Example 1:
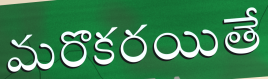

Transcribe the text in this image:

మరొకరయితే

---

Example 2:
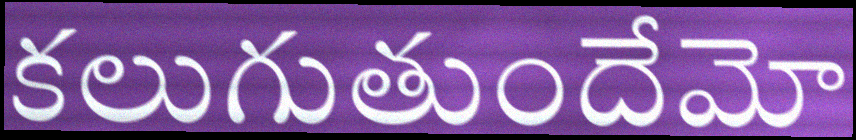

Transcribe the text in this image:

కలుగుతుందేమో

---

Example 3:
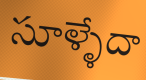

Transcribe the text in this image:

సూళ్ళేదా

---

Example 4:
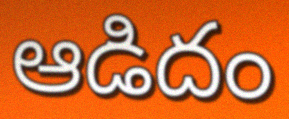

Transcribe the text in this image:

ఆడిదం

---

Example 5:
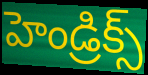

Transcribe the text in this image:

హెండ్రిక్స్